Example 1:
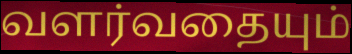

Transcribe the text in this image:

வளர்வதையும்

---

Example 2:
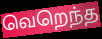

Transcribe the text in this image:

வெறெந்த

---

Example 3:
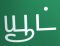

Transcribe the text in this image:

யூட்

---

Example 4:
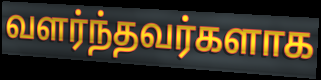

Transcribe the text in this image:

வளர்ந்தவர்களாக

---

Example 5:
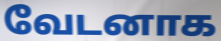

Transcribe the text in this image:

வேடனாக